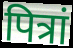
पित्रां